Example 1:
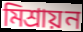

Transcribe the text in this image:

মিশ্রায়ন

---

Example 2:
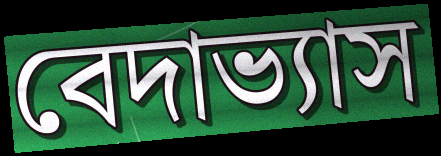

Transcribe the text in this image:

বেদাভ্যাস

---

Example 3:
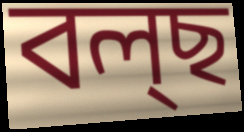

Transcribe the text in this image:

বল্‌ছ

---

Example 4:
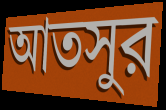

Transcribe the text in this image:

আতসুর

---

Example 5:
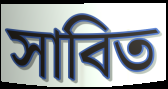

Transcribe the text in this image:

সাবিত